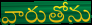
వారుతోను